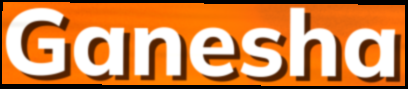
Ganesha